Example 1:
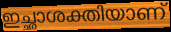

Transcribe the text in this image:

ഇച്ഛാശക്തിയാണ്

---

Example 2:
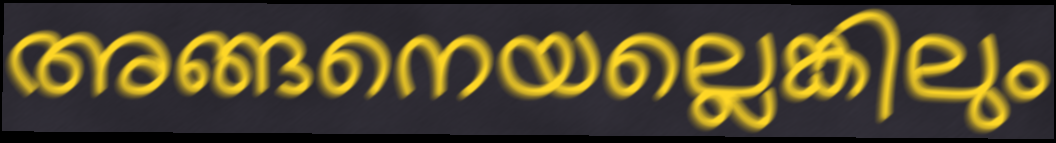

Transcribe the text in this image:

അങ്ങനെയല്ലെങ്കിലും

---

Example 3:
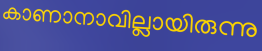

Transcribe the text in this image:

കാണാനാവില്ലായിരുന്നു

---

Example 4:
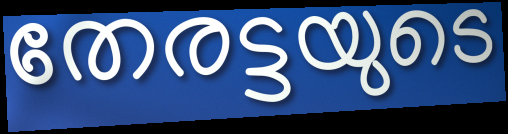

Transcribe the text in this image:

തേരട്ടയുടെ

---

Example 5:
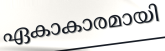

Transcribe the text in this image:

ഏകാകാരമായി